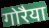
गोरैया